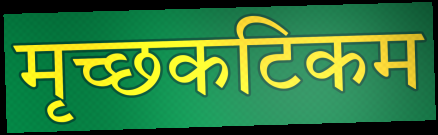
मृच्छकटिकम